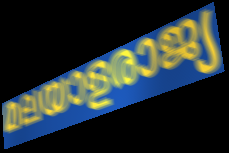
മലയാളരാജ്യ